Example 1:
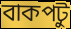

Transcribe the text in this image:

বাকপটু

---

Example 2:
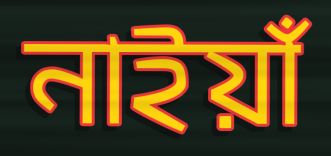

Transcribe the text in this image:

নাইয়াঁ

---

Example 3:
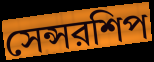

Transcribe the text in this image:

সেন্সরশিপ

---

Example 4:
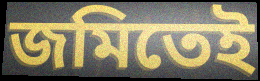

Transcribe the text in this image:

জমিতেই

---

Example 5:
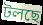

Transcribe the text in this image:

টলছে